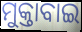
ମୁକ୍ତାବାଇ